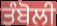
ਤੰਬੋਲੀ